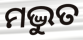
ମଦ୍ଭୁତ